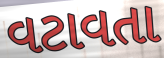
વટાવતા